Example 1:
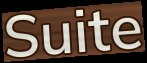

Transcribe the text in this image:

Suite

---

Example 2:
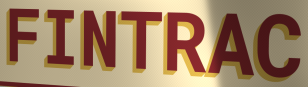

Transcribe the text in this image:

FINTRAC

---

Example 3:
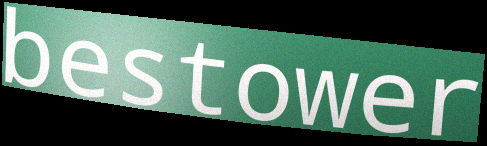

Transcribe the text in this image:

bestower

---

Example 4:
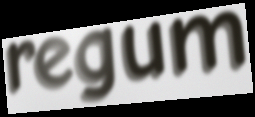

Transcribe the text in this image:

regum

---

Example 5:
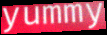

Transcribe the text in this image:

yummy